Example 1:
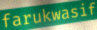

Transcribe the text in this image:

farukwasif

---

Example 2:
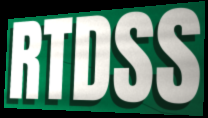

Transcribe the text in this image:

RTDSS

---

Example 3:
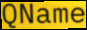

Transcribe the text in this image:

QName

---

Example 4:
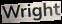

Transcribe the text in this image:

Wright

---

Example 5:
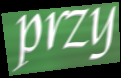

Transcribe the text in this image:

przy